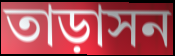
তাড়াসন